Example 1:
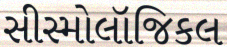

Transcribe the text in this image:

સીસ્મોલૉજિકલ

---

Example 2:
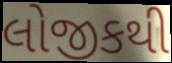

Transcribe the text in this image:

લોજીકથી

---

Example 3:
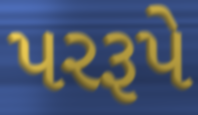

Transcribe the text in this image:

પરરૂપે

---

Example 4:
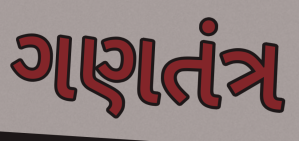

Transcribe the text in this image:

ગણતંત્ર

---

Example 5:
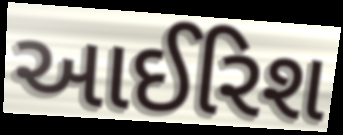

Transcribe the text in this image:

આઈરિશ